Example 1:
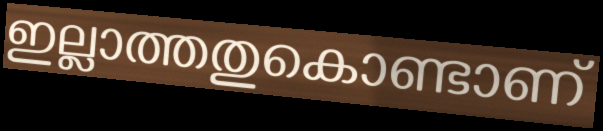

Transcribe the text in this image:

ഇല്ലാത്തതുകൊണ്ടാണ്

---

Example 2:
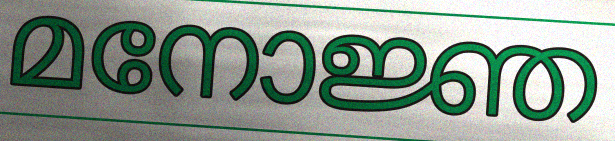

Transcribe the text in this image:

മനോജ്ഞ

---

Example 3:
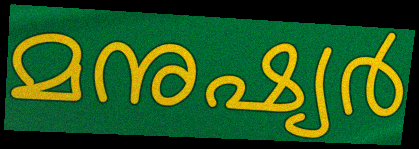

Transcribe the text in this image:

മനുഷ്യർ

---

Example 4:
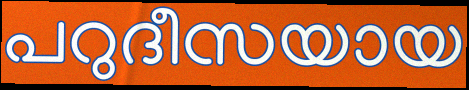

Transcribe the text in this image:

പറുദീസയായ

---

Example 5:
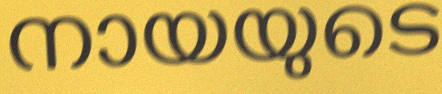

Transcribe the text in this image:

നായയുടെ